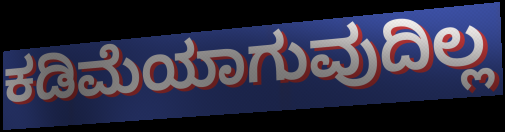
ಕಡಿಮೆಯಾಗುವುದಿಲ್ಲ